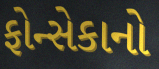
ફોન્સેકાનો